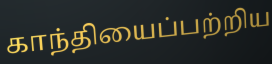
காந்தியைப்பற்றிய